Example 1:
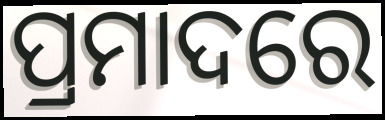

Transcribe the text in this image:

ପ୍ରମାଦରେ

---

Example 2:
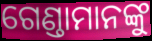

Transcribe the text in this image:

ଗେଣ୍ଡାମାନଙ୍କୁ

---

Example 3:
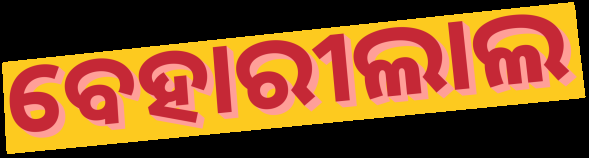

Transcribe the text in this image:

ବେହାରୀଲାଲ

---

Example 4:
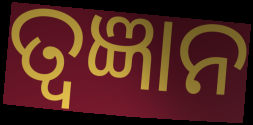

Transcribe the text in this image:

ତ୍ୱଜ୍ଞାନ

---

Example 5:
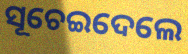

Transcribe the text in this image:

ସୂଚେଇଦେଲେ